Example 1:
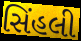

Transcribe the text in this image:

સિંહલી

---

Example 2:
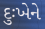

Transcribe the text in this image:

દુઃખેને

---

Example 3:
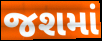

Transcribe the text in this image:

જશમાં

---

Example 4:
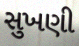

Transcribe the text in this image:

સુખણી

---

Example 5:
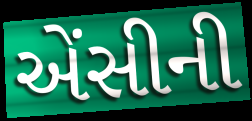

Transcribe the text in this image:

એંસીની